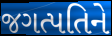
જગત્પતિને